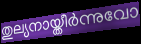
തുല്യനായ്തീർന്നുവോ